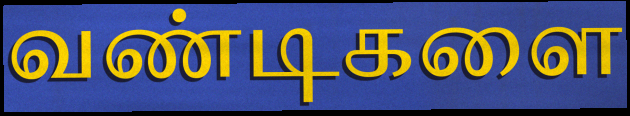
வண்டிகளை